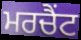
ਮਰਚੈਂਟ